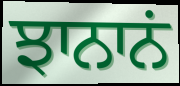
ਝਾਨਾਨਂ